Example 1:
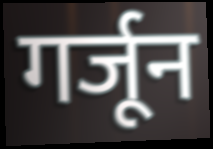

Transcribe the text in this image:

गर्जून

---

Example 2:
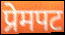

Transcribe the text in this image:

प्रेमपट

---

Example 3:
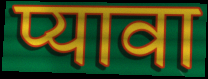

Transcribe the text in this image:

प्यावा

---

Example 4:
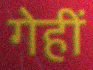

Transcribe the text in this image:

गेहीं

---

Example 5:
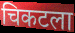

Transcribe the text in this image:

चिकटला